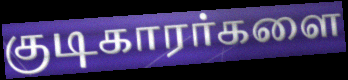
குடிகாரர்களை